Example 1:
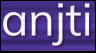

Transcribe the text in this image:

anjti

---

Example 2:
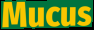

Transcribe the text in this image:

Mucus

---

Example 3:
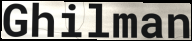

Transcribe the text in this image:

Ghilman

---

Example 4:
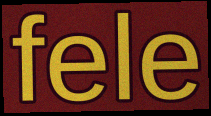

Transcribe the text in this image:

fele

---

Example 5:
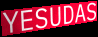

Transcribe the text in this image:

YESUDAS